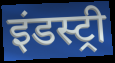
इंडस्‍ट्री